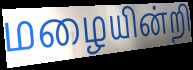
மழையின்றி